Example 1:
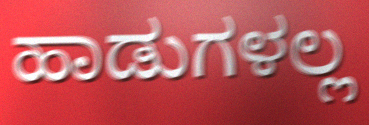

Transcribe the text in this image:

ಹಾಡುಗಳಲ್ಲ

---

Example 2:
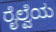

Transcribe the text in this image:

ರೈಲ್ವೆಯ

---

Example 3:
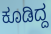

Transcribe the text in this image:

ಕೂಡಿದ್ದ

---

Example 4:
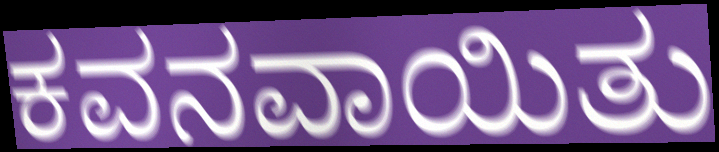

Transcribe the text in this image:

ಕವನವಾಯಿತು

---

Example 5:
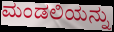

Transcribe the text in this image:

ಮಂಡಲಿಯನ್ನು